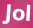
Jol